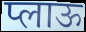
प्लाऊ